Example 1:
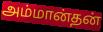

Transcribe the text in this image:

அம்மான்தன்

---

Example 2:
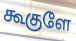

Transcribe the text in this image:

கூகுளே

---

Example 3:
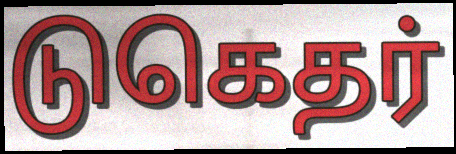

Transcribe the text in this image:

டுகெதர்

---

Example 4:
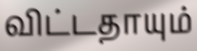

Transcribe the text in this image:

விட்டதாயும்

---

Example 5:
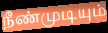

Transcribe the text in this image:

நீண்முடியும்